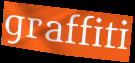
graffiti